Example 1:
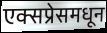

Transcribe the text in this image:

एक्सप्रेसमधून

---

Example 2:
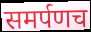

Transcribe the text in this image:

समर्पणच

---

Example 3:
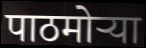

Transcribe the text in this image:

पाठमोऱ्या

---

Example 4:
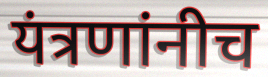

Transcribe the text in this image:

यंत्रणांनीच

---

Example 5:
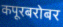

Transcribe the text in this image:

कपूरबरोबर